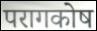
परागकोष